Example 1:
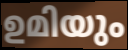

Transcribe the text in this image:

ഉമിയും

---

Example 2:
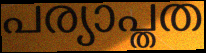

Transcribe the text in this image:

പര്യാപ്തത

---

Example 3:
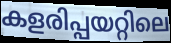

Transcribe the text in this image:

കളരിപ്പയറ്റിലെ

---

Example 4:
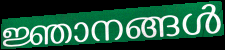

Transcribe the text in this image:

ജ്ഞാനങ്ങൾ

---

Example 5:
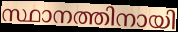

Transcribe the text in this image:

സ്ഥാനത്തിനായി